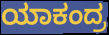
ಯಾಕಂದ್ರ